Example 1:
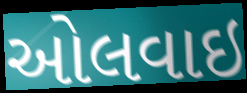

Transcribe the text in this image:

ઓલવાઇ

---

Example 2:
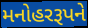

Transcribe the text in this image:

મનોહરરૂપને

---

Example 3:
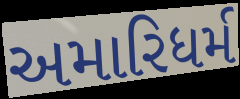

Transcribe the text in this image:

અમારિધર્મ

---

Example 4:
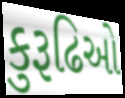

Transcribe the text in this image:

કુરૂઢિઓ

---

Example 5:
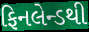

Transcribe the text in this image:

ફિનલેન્ડથી